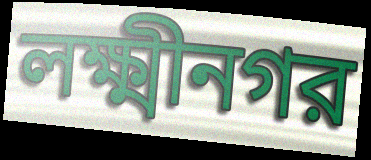
লক্ষ্মীনগর